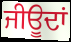
ਜੀਊਦਾਂ